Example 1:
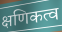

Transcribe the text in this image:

क्षणिकत्व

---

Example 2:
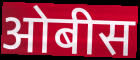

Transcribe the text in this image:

ओबीस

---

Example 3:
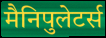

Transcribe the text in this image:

मैनिपुलेटर्स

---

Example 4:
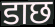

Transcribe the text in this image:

डाछ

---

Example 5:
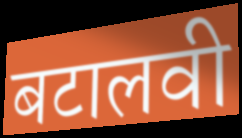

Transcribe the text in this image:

बटालवी